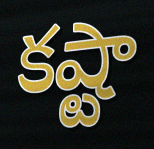
కష్టా